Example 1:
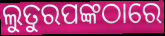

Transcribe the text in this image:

ଲୁତୁରପଙ୍କଠାରେ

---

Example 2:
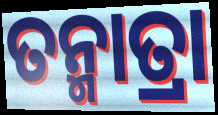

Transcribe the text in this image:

ତନ୍ମାତ୍ରା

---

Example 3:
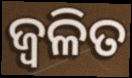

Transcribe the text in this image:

ଜ୍ୱଳିତ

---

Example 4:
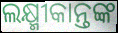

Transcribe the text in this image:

ଲକ୍ଷ୍ମୀକାନ୍ତଙ୍କ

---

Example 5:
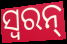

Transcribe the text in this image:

ସ୍ୱରନ୍